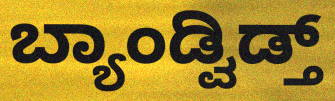
ಬ್ಯಾಂಡ್ವಿಡ್ತ್